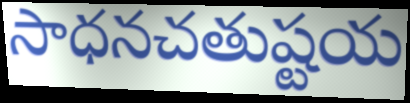
సాధనచతుష్టయ